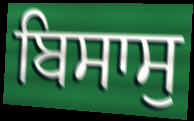
ਬਿਸਾਸੁ